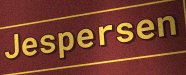
Jespersen